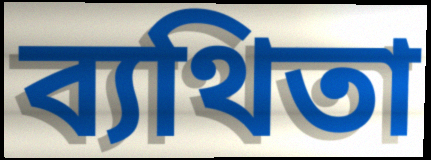
ব্যথিতা